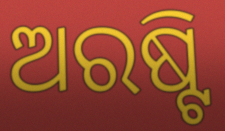
ଅରଷ୍ଟି